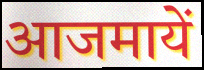
आजमायें